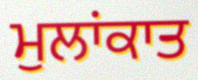
ਮੁਲਾਂਕਾਤ